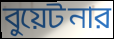
বুয়েটনার